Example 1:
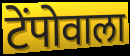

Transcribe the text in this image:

टेंपोवाला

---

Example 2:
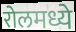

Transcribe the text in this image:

रोलमध्ये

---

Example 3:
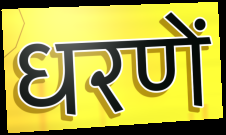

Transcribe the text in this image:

धरणें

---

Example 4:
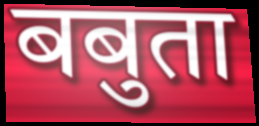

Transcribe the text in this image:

बबुता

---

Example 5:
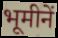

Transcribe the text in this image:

भूमीनें